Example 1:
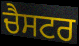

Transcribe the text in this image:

ਚੈਸਟਰ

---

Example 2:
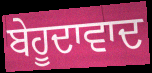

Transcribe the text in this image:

ਬੇਹੂਦਾਵਾਦ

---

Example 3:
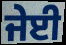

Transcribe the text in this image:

ਜੇਈ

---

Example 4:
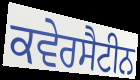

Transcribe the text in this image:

ਕਵੇਰਸੈਟੀਨ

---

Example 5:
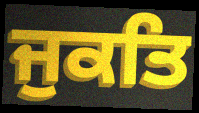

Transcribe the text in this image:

ਜੁਕਤਿ